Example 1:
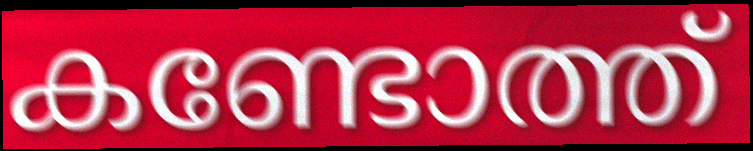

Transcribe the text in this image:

കണ്ടോത്ത്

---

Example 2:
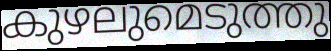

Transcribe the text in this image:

കുഴലുമെടുത്തു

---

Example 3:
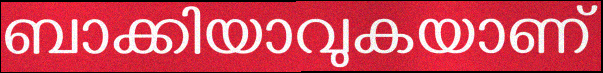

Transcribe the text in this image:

ബാക്കിയാവുകയാണ്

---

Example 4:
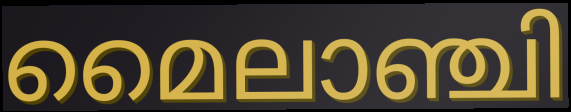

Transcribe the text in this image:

മൈലാഞ്ചി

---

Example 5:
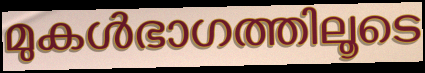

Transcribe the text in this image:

മുകൾഭാഗത്തിലൂടെ